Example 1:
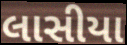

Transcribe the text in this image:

લાસીયા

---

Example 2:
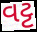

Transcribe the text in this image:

વટ્ટ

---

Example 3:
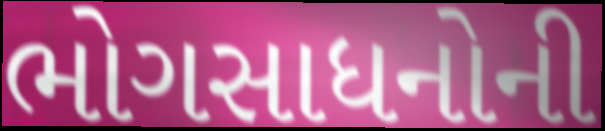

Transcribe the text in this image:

ભોગસાધનોની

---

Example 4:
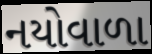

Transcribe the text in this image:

નયોવાળા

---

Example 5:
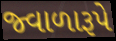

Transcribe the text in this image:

જ્વાળારૂપે